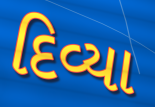
દિવ્યા